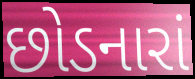
છોડનારાં